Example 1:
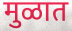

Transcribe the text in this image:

मुळात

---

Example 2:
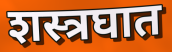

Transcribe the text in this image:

शस्त्रघात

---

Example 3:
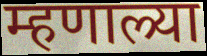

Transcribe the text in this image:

म्हणाल्या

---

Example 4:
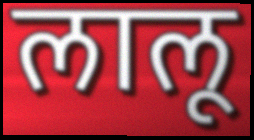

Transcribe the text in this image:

लालू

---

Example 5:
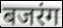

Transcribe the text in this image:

बजरंग